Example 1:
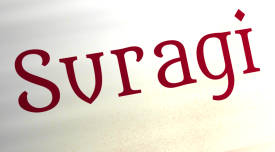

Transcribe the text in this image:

Suragi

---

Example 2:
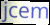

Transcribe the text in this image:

jcem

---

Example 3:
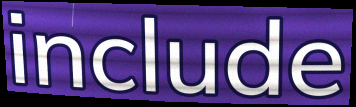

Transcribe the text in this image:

include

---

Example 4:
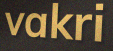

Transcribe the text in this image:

vakri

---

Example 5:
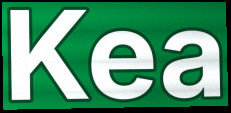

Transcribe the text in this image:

Kea